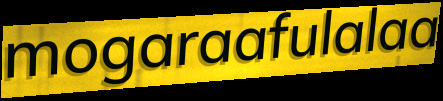
mogaraafulalaa